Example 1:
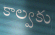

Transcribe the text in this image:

కాల్వకు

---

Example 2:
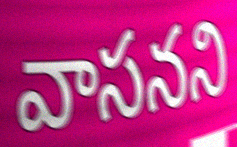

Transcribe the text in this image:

వాసనని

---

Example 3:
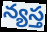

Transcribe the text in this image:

న్యస్త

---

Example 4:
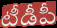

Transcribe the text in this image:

టీడీపీ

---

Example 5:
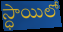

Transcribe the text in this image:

స్ధాయిలో